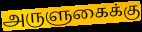
அருளுகைக்கு